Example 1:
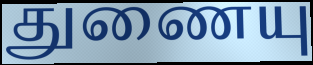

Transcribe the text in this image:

துணையு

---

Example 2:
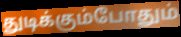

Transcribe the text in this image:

துடிக்கும்போதும்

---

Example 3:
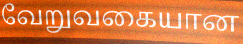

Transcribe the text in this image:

வேறுவகையான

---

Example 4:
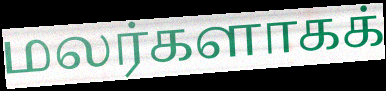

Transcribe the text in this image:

மலர்களாகக்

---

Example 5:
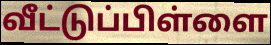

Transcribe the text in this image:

வீட்டுப்பிள்ளை